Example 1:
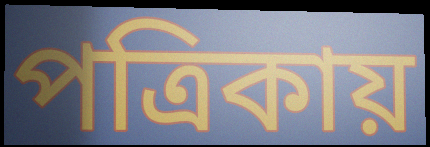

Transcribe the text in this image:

পত্রিকায়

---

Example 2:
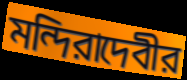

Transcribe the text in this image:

মন্দিরাদেবীর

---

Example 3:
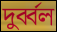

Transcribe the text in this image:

দুর্ব্বল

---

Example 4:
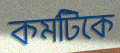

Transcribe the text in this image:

কর্মটিকে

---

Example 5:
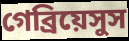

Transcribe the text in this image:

গেব্রিয়েসুস